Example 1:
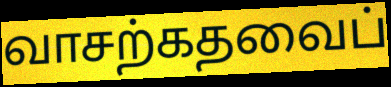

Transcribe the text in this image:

வாசற்கதவைப்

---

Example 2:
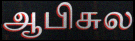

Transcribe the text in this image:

ஆபிசுல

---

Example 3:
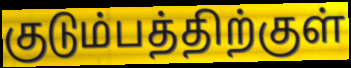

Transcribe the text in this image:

குடும்பத்திற்குள்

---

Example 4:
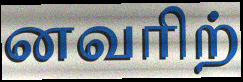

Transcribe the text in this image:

னவரிற்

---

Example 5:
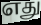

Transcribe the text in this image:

எது